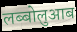
लब्बोलुआब